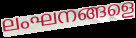
ലംഘനങ്ങളെ